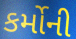
કર્મોની